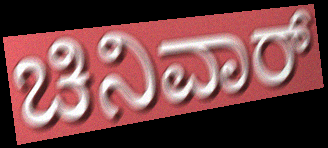
ಚಿನಿವಾರ್